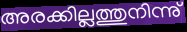
അരക്കില്ലത്തുനിന്നു്